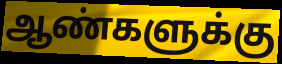
ஆண்களுக்கு